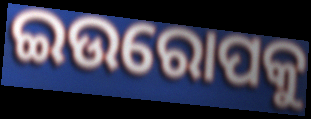
ଇଉରୋପକୁ